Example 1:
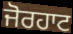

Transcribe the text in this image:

ਜੋਰਹਾਟ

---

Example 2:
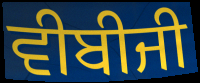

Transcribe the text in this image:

ਵੀਬੀਜੀ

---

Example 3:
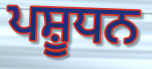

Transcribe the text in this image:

ਪਸ਼ੂਧਨ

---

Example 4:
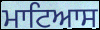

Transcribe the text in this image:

ਮਾਟਿਆਸ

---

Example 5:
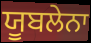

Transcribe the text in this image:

ਯੂਬਲੇਨਾ